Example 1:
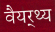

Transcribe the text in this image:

वैयर्थ्य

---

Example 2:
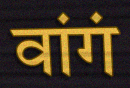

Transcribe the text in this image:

वांगं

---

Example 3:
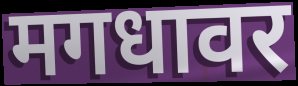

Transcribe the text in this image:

मगधावर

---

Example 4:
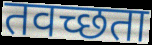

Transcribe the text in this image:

तवच्छता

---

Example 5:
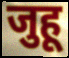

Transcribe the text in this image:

जुहू